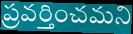
ప్రవర్తించమని